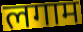
लगाम